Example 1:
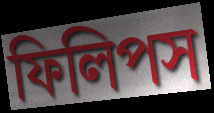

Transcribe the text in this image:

ফিলিপস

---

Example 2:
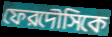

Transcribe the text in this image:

ফেরদৌসিকে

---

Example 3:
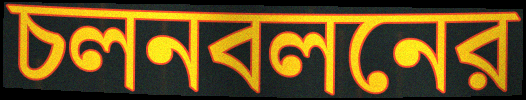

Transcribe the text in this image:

চলনবলনের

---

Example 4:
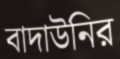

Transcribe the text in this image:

বাদাউনির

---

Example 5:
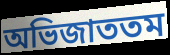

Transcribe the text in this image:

অভিজাততম